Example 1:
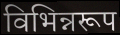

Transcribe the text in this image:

विभिन्नरूप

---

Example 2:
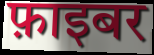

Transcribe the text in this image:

फ़ाइबर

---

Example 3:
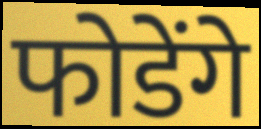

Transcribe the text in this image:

फोडेंगे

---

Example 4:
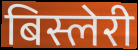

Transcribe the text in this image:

बिस्लेरी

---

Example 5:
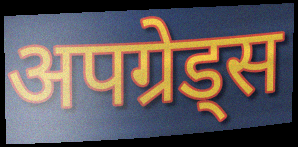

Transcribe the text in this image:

अपग्रेड्स